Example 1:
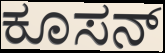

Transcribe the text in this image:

ಕೂಸನ್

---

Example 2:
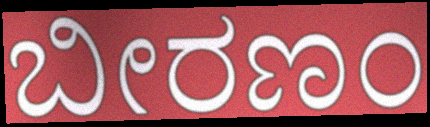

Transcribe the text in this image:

ಬೀರಣಂ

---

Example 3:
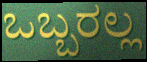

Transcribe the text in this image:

ಒಬ್ಬರಲ್ಲ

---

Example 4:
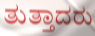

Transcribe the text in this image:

ತುತ್ತಾದರು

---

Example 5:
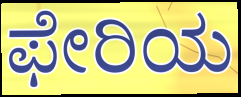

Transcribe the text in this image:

ಫೇರಿಯ